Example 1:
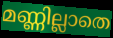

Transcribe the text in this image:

മണ്ണില്ലാതെ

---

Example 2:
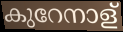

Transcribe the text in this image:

കുറേനാള്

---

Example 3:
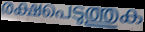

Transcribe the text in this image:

രക്ഷപെടുത്തുക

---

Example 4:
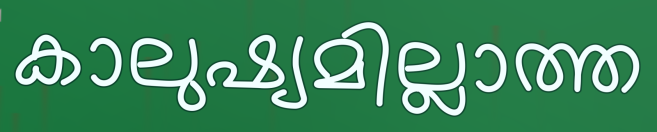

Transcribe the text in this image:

കാലുഷ്യമില്ലാത്ത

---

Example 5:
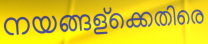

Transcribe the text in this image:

നയങ്ങള്ക്കെതിരെ